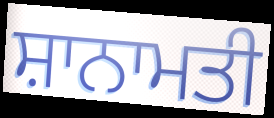
ਸ਼ਾਨਾਮਤੀ